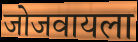
जोजवायला